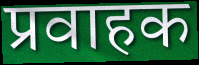
प्रवाहक